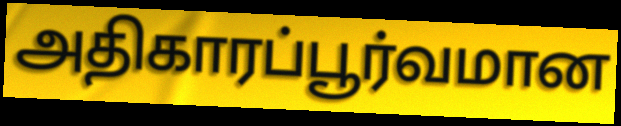
அதிகாரப்பூர்வமான